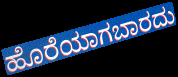
ಹೊರೆಯಾಗಬಾರದು